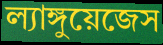
ল্যাঙ্গুয়েজেস